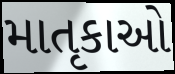
માતૃકાઓ